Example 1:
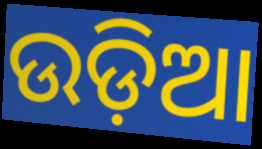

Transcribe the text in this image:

ଉଡ଼ିଆ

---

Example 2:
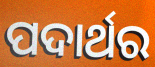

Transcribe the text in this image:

ପଦାର୍ଥର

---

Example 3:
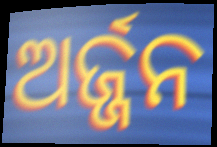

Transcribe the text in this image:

ଅର୍ଜ୍ଜନ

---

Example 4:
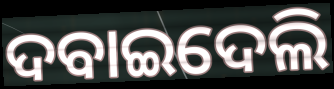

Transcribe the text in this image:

ଦବାଇଦେଲି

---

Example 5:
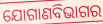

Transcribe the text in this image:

ଯୋଗାଣବିଭାଗର